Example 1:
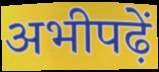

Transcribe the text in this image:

अभीपढ़ें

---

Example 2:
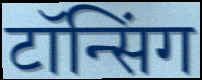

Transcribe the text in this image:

टॉन्सिंग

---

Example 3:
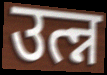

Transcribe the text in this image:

उत्न्न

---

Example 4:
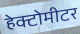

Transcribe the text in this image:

हेक्टोमीटर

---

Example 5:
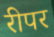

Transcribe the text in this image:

रीपर